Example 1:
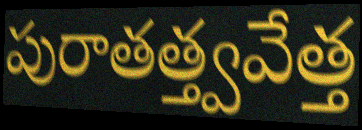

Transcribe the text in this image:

పురాతత్త్వవేత్త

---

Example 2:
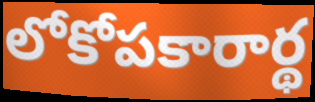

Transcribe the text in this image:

లోకోపకారార్థ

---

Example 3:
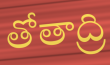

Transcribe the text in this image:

తోతాద్రి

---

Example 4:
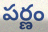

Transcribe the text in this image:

పర్ణం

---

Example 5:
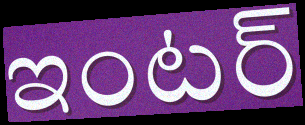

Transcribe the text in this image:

ఇంటర్